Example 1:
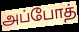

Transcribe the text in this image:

அப்போத்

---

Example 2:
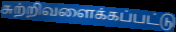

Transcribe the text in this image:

சுற்றிவளைக்கப்பட்டு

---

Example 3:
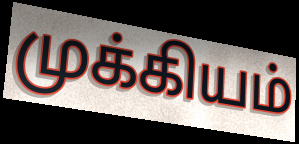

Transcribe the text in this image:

முக்கியம்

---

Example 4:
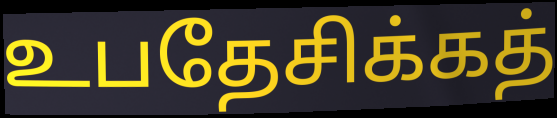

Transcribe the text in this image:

உபதேசிக்கத்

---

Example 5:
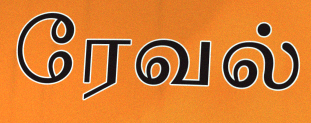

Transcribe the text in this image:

ரேவல்